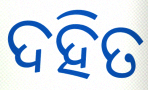
ଦହିତ